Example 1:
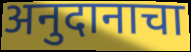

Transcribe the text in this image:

अनुदानाचा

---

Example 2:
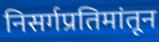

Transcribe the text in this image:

निसर्गप्रतिमांतून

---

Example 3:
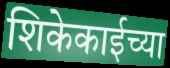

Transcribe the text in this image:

शिकेकाईच्या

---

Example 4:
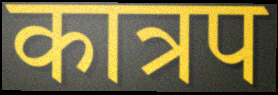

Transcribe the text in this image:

कात्रप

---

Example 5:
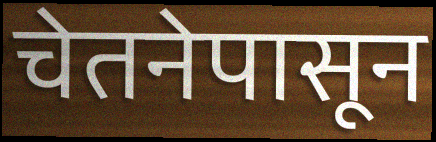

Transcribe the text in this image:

चेतनेपासून